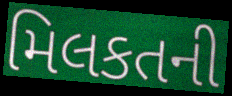
મિલકતની